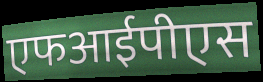
एफआईपीएस